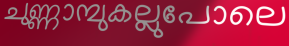
ചുണ്ണാമ്പുകല്ലുപോലെ